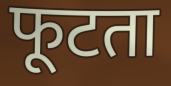
फूटता